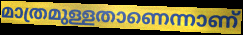
മാത്രമുള്ളതാണെന്നാണ്